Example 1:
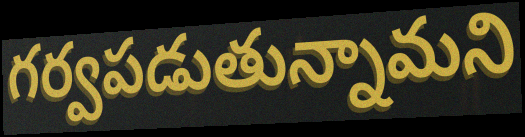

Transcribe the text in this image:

గర్వపడుతున్నామని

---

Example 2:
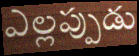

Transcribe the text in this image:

ఎల్లప్పుడు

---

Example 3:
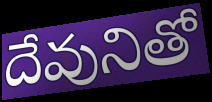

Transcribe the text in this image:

దేవునితో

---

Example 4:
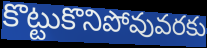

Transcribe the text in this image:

కొట్టుకొనిపోవువరకు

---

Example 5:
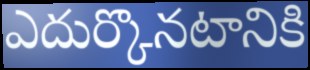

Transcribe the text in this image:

ఎదుర్కొనటానికి